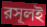
রসূলই